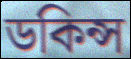
ডকিন্স